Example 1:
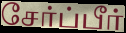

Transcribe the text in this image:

சேர்ப்பீர்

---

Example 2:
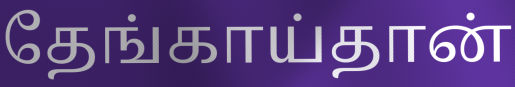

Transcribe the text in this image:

தேங்காய்தான்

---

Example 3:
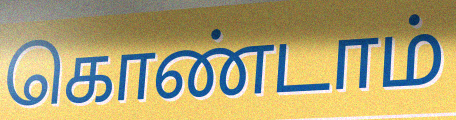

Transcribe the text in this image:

கொண்டாம்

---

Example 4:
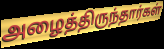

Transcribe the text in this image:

அழைத்திருந்தார்கள்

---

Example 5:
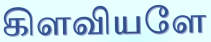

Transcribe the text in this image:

கிளவியளே